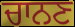
ਚਾਨਣ